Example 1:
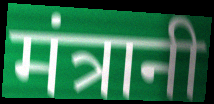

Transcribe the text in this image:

मंत्रानी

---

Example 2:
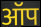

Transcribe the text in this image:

ऑप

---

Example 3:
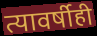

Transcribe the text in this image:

त्यावर्षीही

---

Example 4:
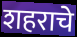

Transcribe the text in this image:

शहराचे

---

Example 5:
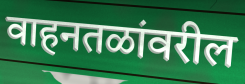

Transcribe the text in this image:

वाहनतळांवरील